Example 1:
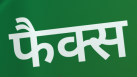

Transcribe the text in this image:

फैक्स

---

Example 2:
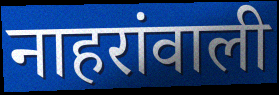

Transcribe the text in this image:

नाहरांवाली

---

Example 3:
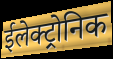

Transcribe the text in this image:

ईलेक्ट्रोनिक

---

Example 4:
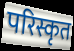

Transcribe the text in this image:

परिस्कृत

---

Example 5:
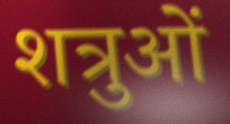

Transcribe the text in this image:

शत्रुओं